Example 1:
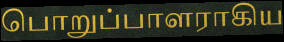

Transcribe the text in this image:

பொறுப்பாளராகிய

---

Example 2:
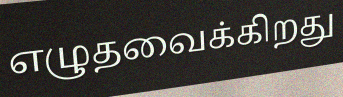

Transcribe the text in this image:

எழுதவைக்கிறது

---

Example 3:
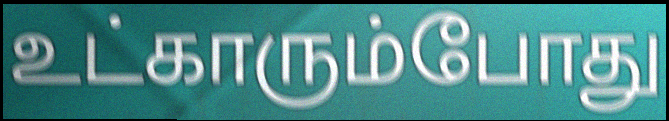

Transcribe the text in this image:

உட்காரும்போது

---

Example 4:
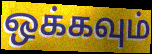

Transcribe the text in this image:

ஒக்கவும்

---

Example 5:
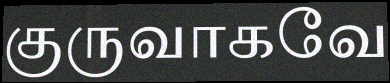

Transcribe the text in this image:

குருவாகவே